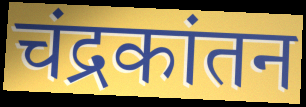
चंद्रकांतन